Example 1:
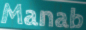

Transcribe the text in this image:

Manab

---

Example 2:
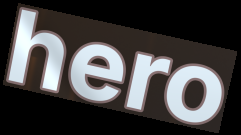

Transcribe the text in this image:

hero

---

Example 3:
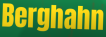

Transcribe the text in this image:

Berghahn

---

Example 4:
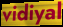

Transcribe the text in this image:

vidiyal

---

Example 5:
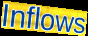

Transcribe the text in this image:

Inflows